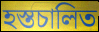
হস্তচালিত